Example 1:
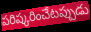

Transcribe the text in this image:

పరిష్కరించేటప్పుడు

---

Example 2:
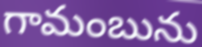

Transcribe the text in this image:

గామంబును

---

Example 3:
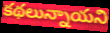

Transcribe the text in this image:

కథలున్నాయని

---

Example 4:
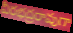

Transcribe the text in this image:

వీరభద్రరావుగా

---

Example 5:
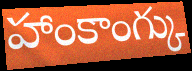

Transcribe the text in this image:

హాంకాంగ్కు